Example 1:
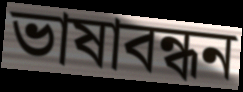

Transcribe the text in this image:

ভাষাবন্ধন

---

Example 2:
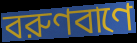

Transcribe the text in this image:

বরুণবাণে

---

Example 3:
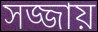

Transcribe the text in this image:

সজ্জায়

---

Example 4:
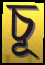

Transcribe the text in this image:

চূ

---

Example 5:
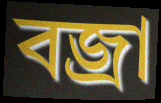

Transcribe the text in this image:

বজ্রা